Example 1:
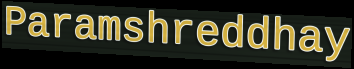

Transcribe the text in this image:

Paramshreddhay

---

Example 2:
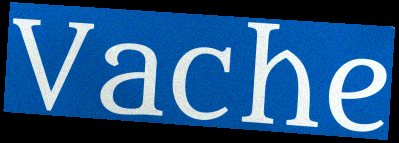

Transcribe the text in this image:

Vache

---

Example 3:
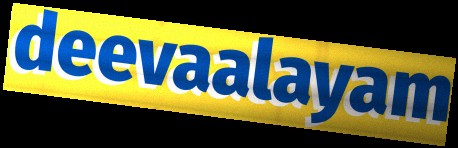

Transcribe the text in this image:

deevaalayam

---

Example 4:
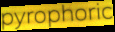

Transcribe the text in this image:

pyrophoric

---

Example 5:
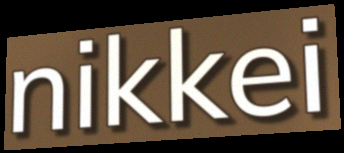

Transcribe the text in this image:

nikkei